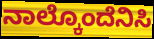
ನಾಲ್ಕೊಂದೆನಿಸಿ